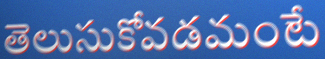
తెలుసుకోవడమంటే